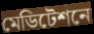
মেডিটেশনে